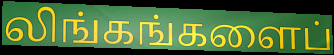
லிங்கங்களைப்